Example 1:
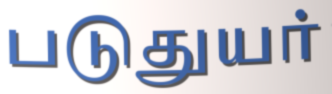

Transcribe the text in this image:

படுதுயர்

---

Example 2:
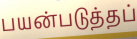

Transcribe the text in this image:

பயன்படுத்தப்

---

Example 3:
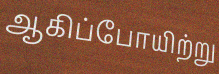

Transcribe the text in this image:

ஆகிப்போயிற்று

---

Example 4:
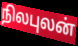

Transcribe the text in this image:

நிலபுலன்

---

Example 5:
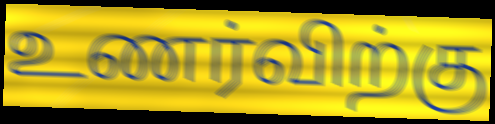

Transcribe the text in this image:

உணர்விற்கு